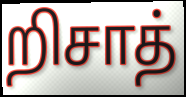
றிசாத்